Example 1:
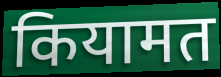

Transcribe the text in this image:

कियामत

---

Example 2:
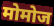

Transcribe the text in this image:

मोमोज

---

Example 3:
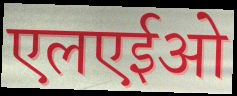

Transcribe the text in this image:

एलएईओ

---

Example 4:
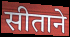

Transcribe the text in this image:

सीताने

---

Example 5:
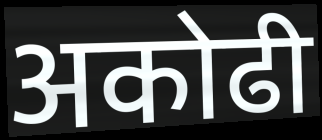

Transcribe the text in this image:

अकोढी